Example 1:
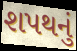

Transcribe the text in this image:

શપથનું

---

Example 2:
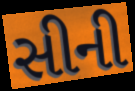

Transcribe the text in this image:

સીની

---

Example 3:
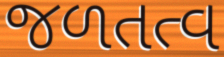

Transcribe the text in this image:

જળતત્વ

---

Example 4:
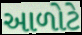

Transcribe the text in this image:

આળોટે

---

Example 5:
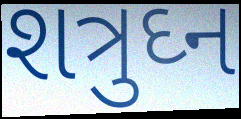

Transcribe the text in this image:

શત્રુઘ્ન